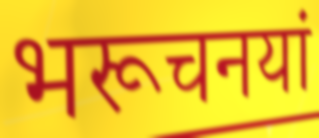
भरूचनयां